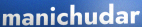
manichudar